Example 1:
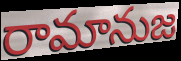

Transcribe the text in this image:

రామానుజ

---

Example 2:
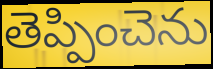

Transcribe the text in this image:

తెప్పించెను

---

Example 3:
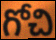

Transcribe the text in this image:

గోచి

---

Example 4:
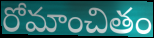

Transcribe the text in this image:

రోమాంచితం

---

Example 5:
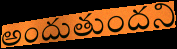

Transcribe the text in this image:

అందుతుందని